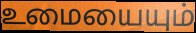
உமையையும்